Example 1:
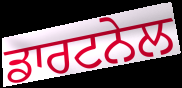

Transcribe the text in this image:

ਡਾਰਟਨੇਲ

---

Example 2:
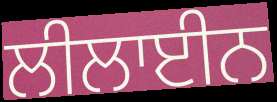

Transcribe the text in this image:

ਲੀਲਾਈਨ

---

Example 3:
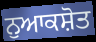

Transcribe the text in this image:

ਨੁਆਕਸ਼ੋਤ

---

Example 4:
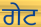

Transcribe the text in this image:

ਗੇਟ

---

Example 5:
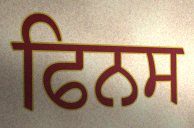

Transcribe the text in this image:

ਫਿਨਸ